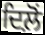
ਦਿਲ਼ੋਂ